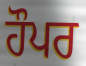
ਹੌਪਰ